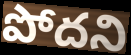
పోదని